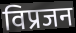
विप्रजन